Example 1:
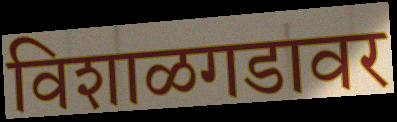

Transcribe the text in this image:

विशाळगडावर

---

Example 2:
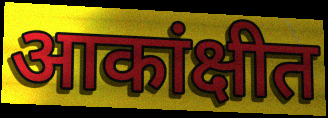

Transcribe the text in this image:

आकांक्षीत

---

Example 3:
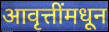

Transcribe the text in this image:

आवृत्तींमधून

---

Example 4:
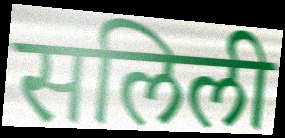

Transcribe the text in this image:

सलिली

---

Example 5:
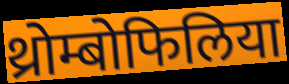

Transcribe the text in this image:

थ्रोम्बोफिलिया